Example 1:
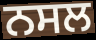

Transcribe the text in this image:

ਨਸਲ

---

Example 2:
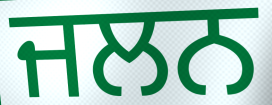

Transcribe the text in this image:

ਜਲਨ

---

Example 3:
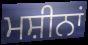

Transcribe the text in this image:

ਮਸ਼ੀਨਾਂ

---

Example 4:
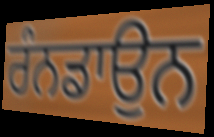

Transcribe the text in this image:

ਰੰਨਡਾਉਨ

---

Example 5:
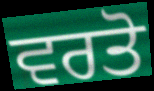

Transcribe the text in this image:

ਵਰਤੋ